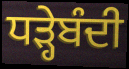
ਧੜ੍ਹੇਬੰਦੀ